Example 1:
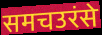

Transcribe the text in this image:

समचउरंसे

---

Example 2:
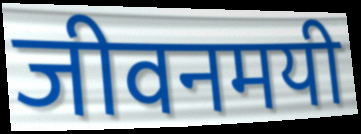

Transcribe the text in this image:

जीवनमयी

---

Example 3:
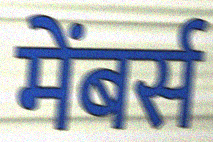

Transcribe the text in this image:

मेंबर्स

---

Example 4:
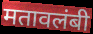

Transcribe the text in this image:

मतावलंबी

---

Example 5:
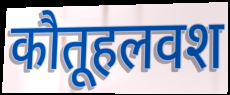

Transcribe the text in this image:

कौतूहलवश